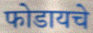
फोडायचे